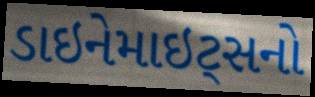
ડાઇનેમાઇટ્સનો